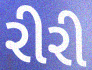
રીરી